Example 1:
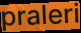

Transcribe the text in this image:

praleri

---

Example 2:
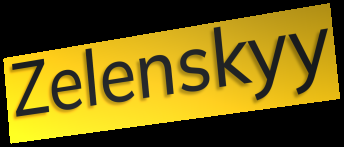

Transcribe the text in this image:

Zelenskyy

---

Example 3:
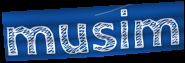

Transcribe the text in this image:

musim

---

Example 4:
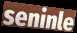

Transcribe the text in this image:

seninle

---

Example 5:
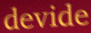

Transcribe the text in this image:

devide